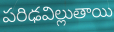
పరిఢవిల్లుతాయి